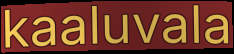
kaaluvala